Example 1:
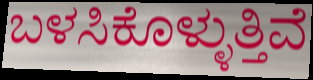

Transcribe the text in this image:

ಬಳಸಿಕೊಳ್ಳುತ್ತಿವೆ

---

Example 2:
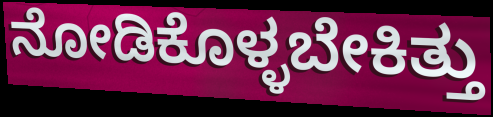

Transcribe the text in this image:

ನೋಡಿಕೊಳ್ಳಬೇಕಿತ್ತು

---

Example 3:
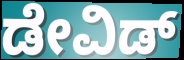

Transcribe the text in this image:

ಡೇವಿಡ್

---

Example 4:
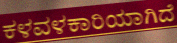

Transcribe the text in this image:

ಕಳವಳಕಾರಿಯಾಗಿದೆ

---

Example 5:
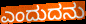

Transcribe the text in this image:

ಎಂದುದನು